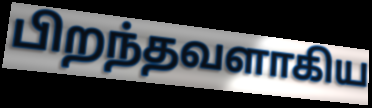
பிறந்தவளாகிய